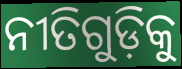
ନୀତିଗୁଡ଼ିକୁ